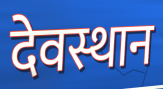
देवस्थान